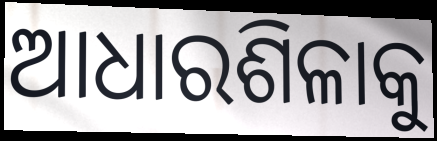
ଆଧାରଶିଳାକୁ